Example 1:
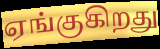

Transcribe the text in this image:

ஏங்குகிறது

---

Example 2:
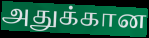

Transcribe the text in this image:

அதுக்கான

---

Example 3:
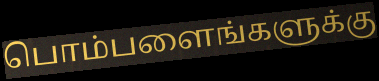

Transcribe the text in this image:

பொம்பளைங்களுக்கு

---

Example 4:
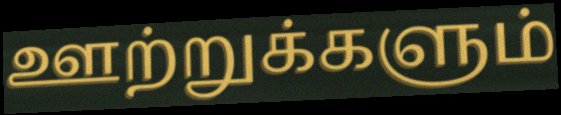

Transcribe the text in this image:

ஊற்றுக்களும்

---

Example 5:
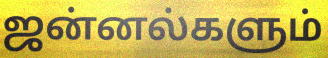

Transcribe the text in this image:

ஜன்னல்களும்